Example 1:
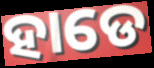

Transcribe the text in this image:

ହାଡେ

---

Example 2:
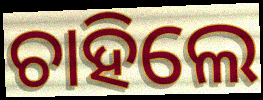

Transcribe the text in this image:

ଚାହିଲେ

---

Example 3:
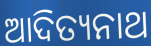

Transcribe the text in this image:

ଆଦିତ୍ୟନାଥ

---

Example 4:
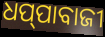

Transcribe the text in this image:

ଧପ୍‌ପାବାଜୀ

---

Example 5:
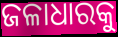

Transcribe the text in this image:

ଜଳାଧାରକୁ